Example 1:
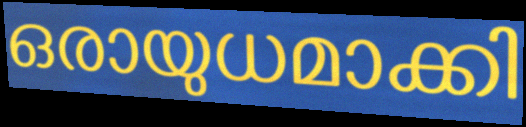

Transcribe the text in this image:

ഒരായുധമാക്കി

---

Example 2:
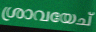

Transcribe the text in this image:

ശ്രാവയേച്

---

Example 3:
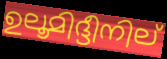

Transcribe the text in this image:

ഉലൂമിദ്ദീനില്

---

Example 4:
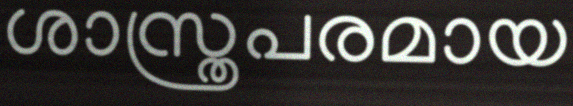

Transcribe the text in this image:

ശാസ്ത്രപരമായ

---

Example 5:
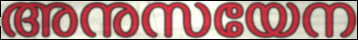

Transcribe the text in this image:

അനുസയേന